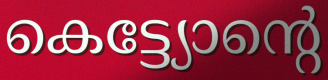
കെട്ട്യോന്റെ